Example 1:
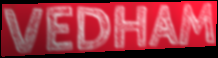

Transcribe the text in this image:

VEDHAM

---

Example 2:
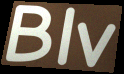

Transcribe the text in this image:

Blv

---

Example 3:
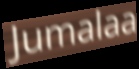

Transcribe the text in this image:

Jumalaa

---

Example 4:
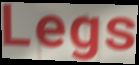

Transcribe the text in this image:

Legs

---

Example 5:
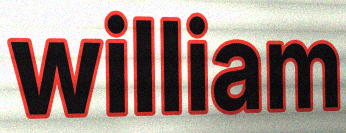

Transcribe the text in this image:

william